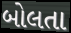
બોલતા